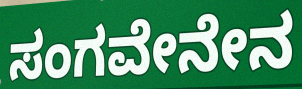
ಸಂಗವೇನೇನ